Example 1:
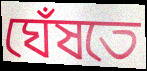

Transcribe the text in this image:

ঘেঁষতে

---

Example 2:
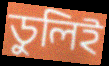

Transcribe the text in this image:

ডুলিই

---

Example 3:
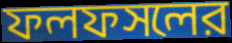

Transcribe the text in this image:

ফলফসলের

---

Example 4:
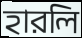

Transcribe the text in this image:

হারলি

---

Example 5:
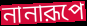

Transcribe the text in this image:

নানারূপে